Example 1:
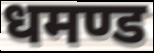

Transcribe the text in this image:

धमण्ड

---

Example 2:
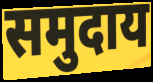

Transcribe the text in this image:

समुदाय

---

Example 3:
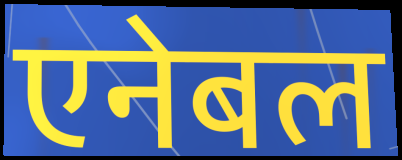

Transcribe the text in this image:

एनेबल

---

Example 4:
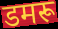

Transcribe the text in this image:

डमरू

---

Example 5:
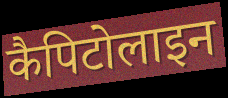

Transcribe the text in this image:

कैपिटोलाइन